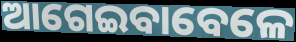
ଆଗେଇବାବେଳେ